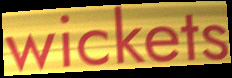
wickets